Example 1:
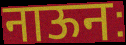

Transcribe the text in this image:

नाऊनः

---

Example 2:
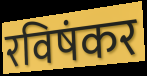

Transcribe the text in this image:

रविषंकर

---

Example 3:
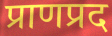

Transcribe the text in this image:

प्राणप्रद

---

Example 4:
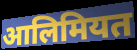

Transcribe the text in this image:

आलिमियत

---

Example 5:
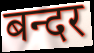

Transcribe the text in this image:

बन्दर